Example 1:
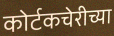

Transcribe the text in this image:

कोर्टकचेरीच्या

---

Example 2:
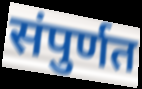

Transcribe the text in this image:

संपुर्णत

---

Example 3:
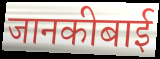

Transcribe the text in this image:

जानकीबाई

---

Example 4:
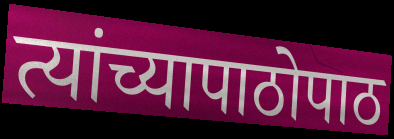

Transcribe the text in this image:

त्यांच्यापाठोपाठ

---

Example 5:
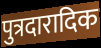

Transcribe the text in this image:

पुत्रदारादिक